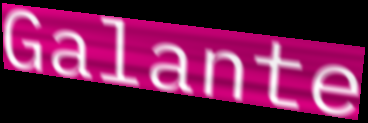
Galante